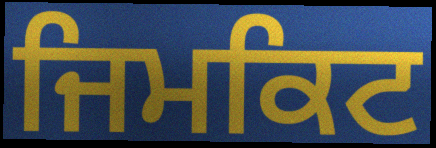
ਜਿਮਕਿਟ